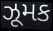
ઝૂમક